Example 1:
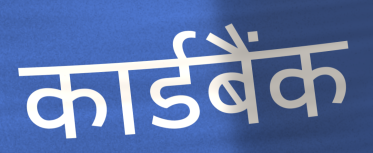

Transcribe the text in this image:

कार्डबैंक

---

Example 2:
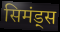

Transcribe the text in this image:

सिमंड्स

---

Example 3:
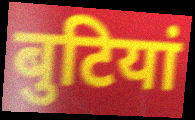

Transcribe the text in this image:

बुटियां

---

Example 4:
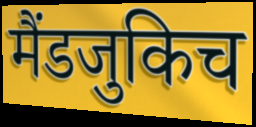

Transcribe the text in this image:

मैंडजुकिच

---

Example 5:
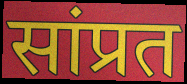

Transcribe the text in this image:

सांप्रत